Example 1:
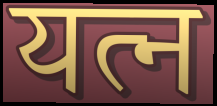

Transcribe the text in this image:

यत्न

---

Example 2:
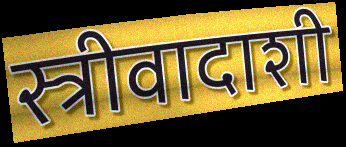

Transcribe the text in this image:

स्त्रीवादाशी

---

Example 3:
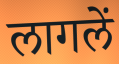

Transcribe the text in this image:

लागलें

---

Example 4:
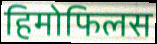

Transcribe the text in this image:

हिमोफिलस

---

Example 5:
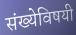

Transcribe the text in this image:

संख्येविषयी